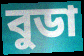
বুডা